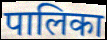
पालिका